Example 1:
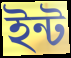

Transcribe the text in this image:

ইন্ট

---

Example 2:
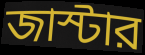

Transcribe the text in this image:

জাস্টার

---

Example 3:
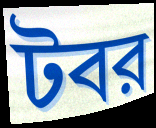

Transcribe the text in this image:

টবর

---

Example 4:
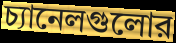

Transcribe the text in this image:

চ্যানেলগুলোর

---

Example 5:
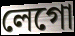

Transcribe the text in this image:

লেগো